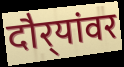
दौर्‍यांवर